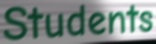
Students